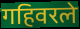
गहिवरले